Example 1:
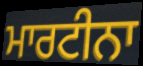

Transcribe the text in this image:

ਮਾਰਟੀਨਾ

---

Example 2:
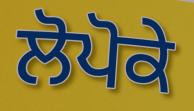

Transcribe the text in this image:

ਲੋਪੋਕੇ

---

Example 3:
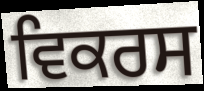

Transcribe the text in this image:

ਵਿਕਰਸ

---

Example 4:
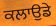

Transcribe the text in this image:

ਕਲਾਉਡੇ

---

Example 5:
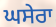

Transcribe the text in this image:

ਘਸੇਰਾ